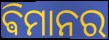
ଵିମାନର